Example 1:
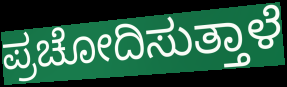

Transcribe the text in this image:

ಪ್ರಚೋದಿಸುತ್ತಾಳೆ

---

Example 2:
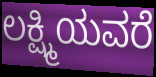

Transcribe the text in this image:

ಲಕ್ಷ್ಮಿಯವರೆ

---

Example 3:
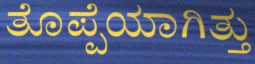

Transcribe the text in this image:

ತೊಪ್ಪೆಯಾಗಿತ್ತು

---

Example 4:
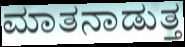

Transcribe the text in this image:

ಮಾತನಾಡುತ್ತ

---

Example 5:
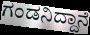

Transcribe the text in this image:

ಗಂಡನಿದ್ದಾನೆ